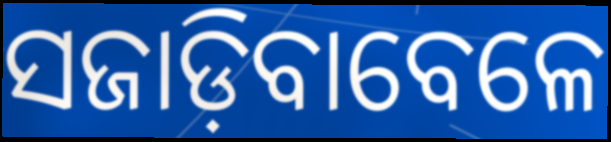
ସଜାଡ଼ିବାବେଳେ